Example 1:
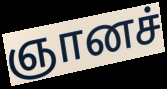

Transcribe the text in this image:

ஞானச்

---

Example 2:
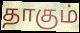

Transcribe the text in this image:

தாகும்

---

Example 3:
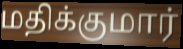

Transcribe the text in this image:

மதிக்குமார்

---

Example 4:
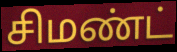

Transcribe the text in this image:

சிமண்ட்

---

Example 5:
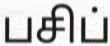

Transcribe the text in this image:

பசிப்